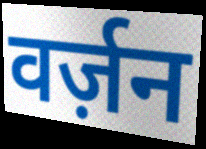
वर्ज़न